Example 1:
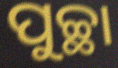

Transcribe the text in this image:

ପୁଚ୍ଛା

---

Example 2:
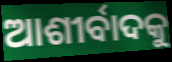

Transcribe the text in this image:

ଆଶୀର୍ବାଦକୁ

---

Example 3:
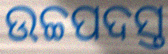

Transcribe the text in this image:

ଉଚ୍ଚପଦସ୍ତ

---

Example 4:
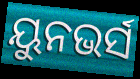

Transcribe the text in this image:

ୟୁନଭର୍ସ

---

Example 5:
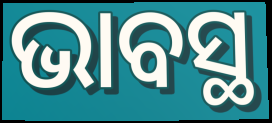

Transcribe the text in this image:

ଭାବସ୍ଥ